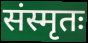
संस्मृतः